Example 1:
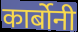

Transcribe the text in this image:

कार्बोनी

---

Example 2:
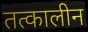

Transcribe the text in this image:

तत्कालीन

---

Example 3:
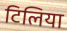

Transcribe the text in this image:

टिलिया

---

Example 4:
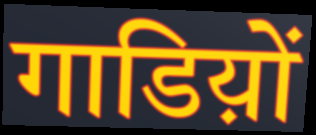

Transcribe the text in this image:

गाडिय़ों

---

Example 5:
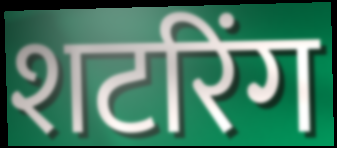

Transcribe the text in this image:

शटरिंग